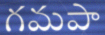
గమపా